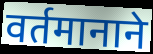
वर्तमानाने